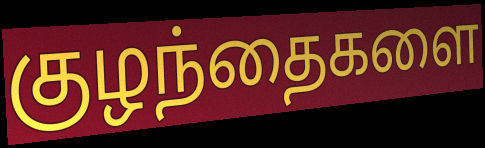
குழந்தைகளை